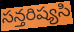
సన్తరిష్యసి